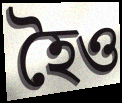
হৈও